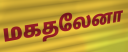
மகதலேனா